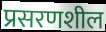
प्रसरणशील